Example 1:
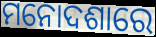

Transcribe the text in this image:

ମନୋଦଶାରେ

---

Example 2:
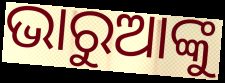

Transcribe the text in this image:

ଭାରୁଆଙ୍କୁ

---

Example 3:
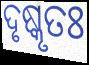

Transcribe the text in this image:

ଦୃଷ୍କୃତଃ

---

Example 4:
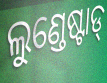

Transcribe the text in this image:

ଲୁଣ୍ଡେଷ୍ଟାଡ୍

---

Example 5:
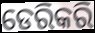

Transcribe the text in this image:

ଡେରିକରି